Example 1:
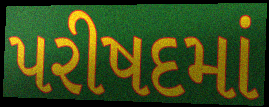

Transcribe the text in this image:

પરીષદમાં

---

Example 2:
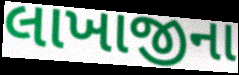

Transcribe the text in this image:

લાખાજીના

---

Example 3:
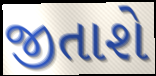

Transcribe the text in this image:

જીતાશે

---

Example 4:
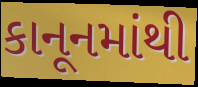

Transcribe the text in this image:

કાનૂનમાંથી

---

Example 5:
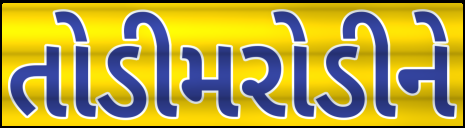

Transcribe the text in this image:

તોડીમરોડીને